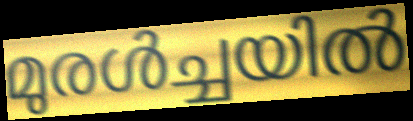
മുരൾച്ചയിൽ